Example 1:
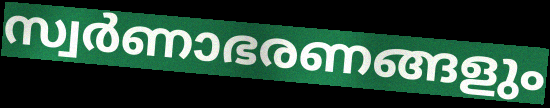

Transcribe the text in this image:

സ്വർണാഭരണങ്ങളും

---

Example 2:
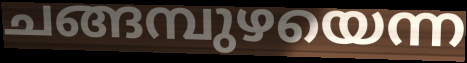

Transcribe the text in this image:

ചങ്ങമ്പുഴയെന്ന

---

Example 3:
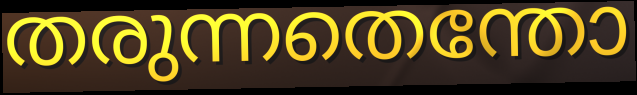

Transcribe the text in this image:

തരുന്നതെന്തോ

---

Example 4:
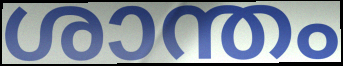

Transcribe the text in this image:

ശാന്തം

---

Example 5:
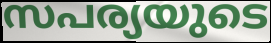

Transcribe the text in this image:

സപര്യയുടെ